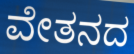
ವೇತನದ